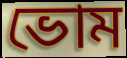
ভোম